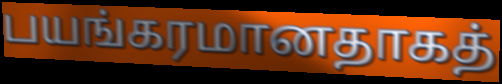
பயங்கரமானதாகத்